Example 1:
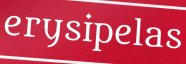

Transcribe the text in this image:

erysipelas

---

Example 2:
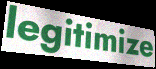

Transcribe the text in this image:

legitimize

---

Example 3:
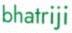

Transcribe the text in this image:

bhatriji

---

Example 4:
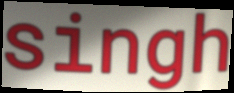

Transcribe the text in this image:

singh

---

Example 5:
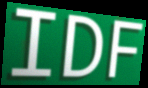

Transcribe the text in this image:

IDF